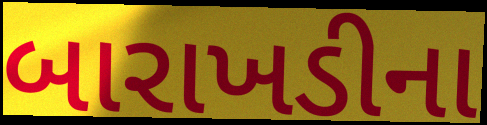
બારાખડીના